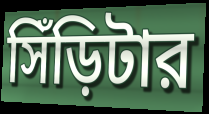
সিঁড়িটার